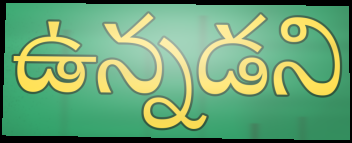
ఉన్నడని